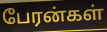
பேரன்கள்